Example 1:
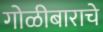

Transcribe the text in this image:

गोळीबाराचे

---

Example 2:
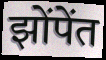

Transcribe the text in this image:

झोंपेंत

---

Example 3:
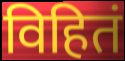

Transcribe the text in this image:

विहितं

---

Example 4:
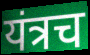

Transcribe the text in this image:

यंत्रच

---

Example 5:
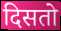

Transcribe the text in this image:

दिसतो